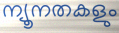
ന്യൂനതകളും